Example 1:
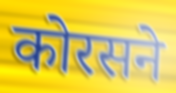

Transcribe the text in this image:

कोरसने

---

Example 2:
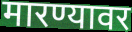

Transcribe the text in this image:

मारण्यावर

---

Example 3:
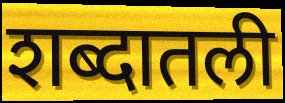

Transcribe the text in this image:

शब्दातली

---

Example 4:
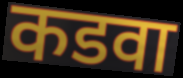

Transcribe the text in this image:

कडवा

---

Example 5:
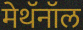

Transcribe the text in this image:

मेथॅनॉल